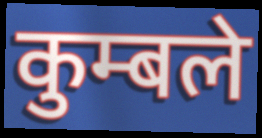
कुम्बले